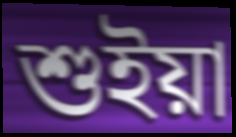
শুইয়া